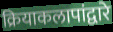
क्रियाकलापांद्वारे